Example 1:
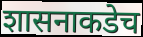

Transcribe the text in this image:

शासनाकडेच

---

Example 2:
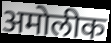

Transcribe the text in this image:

अमोलीक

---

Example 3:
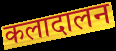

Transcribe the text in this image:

कलादालन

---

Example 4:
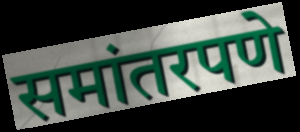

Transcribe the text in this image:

समांतरपणे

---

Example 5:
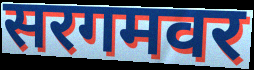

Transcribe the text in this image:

सरगमवर